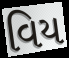
વિય